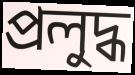
প্রলুদ্ধ